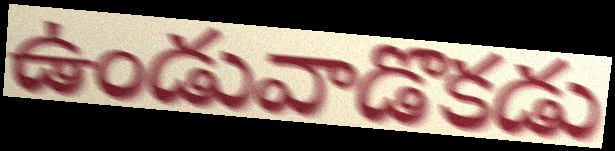
ఉండువాడొకడు